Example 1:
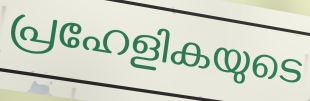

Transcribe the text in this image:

പ്രഹേളികയുടെ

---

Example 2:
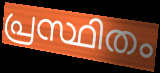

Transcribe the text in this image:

പ്രസ്ഥിതം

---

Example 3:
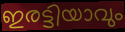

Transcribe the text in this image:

ഇരട്ടിയാവും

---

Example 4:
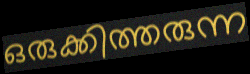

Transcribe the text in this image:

ഒരുക്കിത്തരുന്ന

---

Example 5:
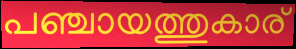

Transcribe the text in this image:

പഞ്ചായത്തുകാര്